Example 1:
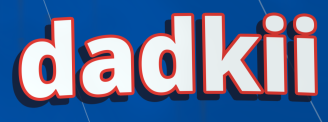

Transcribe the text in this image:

dadkii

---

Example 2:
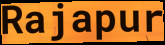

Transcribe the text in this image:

Rajapur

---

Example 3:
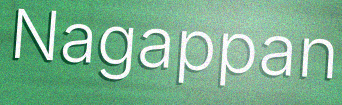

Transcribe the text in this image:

Nagappan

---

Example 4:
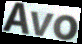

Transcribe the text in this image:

Avo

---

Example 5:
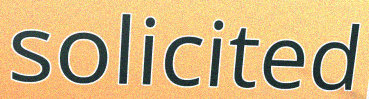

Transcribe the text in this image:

solicited